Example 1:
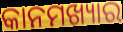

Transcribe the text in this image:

କାନମଖ୍ୟାର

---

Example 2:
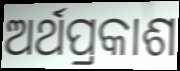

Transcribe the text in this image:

ଅର୍ଥପ୍ରକାଶ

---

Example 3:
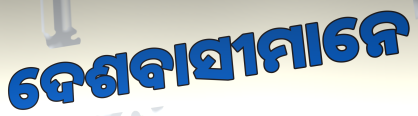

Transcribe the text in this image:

ଦେଶବାସୀମାନେ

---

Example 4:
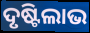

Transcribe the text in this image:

ଦୃଷ୍ଟିଲାଭ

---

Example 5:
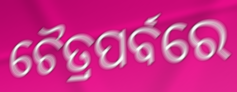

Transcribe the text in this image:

ଚୈତ୍ରପର୍ବରେ